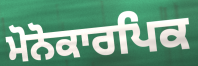
ਮੋਨੋਕਾਰਪਿਕ